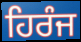
ਹਿਰੰਜ